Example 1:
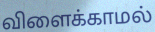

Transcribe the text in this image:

விளைக்காமல்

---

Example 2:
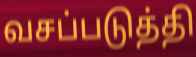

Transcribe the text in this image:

வசப்படுத்தி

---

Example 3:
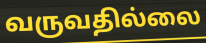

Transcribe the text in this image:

வருவதில்லை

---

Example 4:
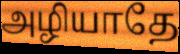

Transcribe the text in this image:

அழியாதே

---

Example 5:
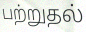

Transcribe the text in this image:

பற்றுதல்